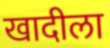
खादीला